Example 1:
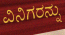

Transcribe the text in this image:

ವಿನಿಗರನ್ನು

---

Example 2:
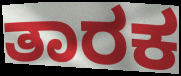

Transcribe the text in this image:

ತಾರಕ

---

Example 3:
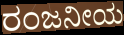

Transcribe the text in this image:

ರಂಜನೀಯ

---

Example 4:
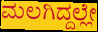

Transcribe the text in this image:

ಮಲಗಿದ್ದಲ್ಲೇ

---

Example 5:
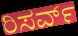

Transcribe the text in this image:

ರಿಸರ್ವ್